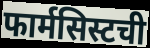
फार्मसिस्टची